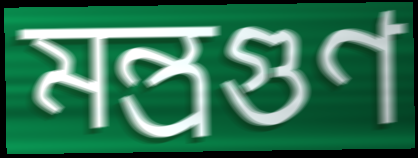
মন্ত্রগুণ